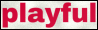
playful